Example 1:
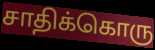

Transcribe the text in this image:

சாதிக்கொரு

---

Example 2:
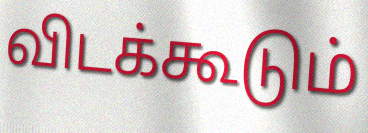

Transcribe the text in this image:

விடக்கூடும்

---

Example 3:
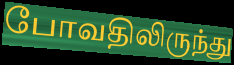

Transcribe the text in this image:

போவதிலிருந்து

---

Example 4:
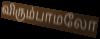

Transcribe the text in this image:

விரும்பாமலோ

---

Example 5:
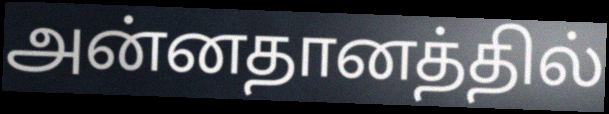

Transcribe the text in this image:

அன்னதானத்தில்